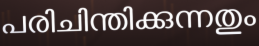
പരിചിന്തിക്കുന്നതും